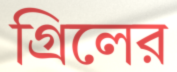
গ্রিলের